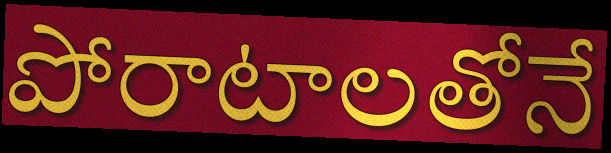
పోరాటాలతోనే